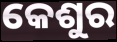
କେଶୁର